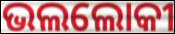
ଭଲଲୋକୀ